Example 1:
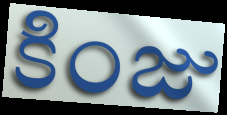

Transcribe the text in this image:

కింజు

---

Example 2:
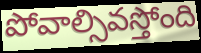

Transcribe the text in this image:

పోవాల్సివస్తోంది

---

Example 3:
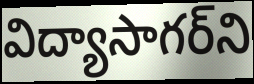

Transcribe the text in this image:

విద్యాసాగర్‌ని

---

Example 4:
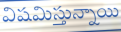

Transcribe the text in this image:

విషమిస్తున్నాయి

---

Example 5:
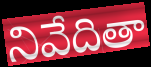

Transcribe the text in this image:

నివేదితా